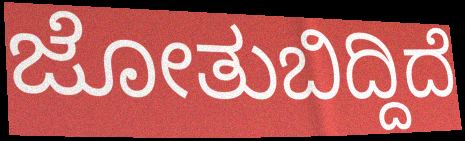
ಜೋತುಬಿದ್ದಿದೆ